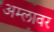
अम्लावर